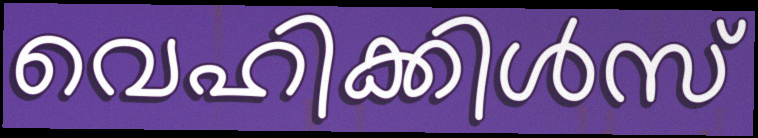
വെഹിക്കിൾസ്